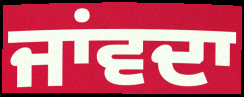
ਜਾਂਵਦਾ